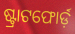
ଷ୍ଟ୍ରାଟଫୋର୍ଡ଼